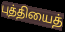
புத்தியைத்